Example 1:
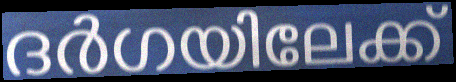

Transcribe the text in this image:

ദർഗയിലേക്ക്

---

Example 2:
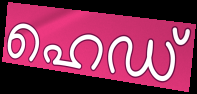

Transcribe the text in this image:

ഹെഡ്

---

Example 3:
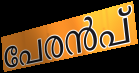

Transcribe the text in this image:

പേരൻപ്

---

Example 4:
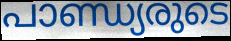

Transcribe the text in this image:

പാണ്ഡ്യരുടെ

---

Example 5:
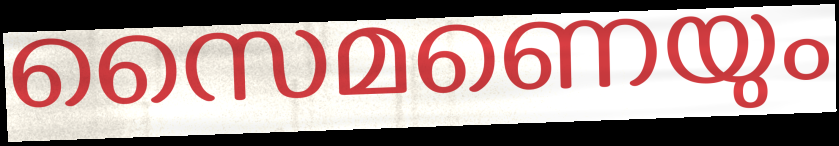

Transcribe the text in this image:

സൈമണെയും